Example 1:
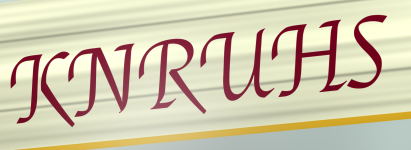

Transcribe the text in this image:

KNRUHS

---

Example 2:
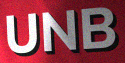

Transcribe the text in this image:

UNB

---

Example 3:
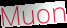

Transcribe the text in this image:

Muon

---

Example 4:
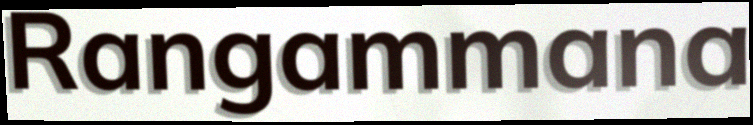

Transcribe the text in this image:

Rangammana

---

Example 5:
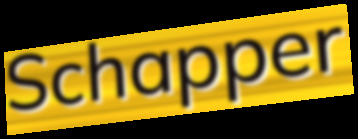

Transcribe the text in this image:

Schapper